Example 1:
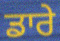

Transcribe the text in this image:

ਡਾਰੇ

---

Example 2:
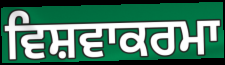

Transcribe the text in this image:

ਵਿਸ਼ਵਾਕਰਮਾ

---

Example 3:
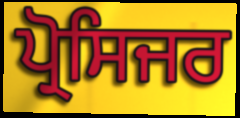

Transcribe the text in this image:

ਪ੍ਰੋਸਿਜਰ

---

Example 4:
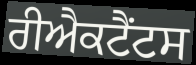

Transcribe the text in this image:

ਰੀਐਕਟੈਂਟਸ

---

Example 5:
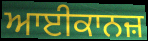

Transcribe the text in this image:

ਆਈਕਾਨਜ਼